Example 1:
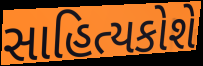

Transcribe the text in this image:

સાહિત્યકોશે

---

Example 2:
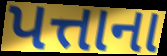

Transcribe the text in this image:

પત્તાના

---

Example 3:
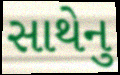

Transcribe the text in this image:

સાથેનુ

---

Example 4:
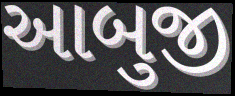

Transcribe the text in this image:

આબુજી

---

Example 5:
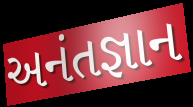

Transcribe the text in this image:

અનંતજ્ઞાન